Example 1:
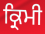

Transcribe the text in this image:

ਕ੍ਰਿਮੀ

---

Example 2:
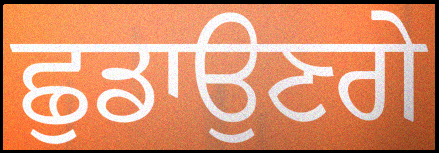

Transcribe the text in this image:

ਛੁਡਾਉਣਗੇ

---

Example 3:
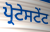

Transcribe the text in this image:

ਪ੍ਰੋਟੇਸਟੇਂਟ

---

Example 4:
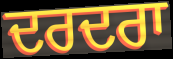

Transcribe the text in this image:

ਦਰਦਰਾ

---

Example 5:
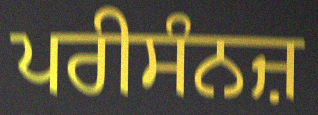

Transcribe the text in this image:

ਪਰੀਸੰਨਜ਼